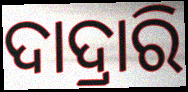
ଦାଦ୍ରାରି